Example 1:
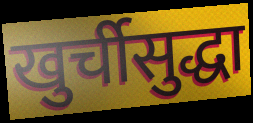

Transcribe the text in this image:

खुर्चीसुद्धा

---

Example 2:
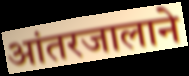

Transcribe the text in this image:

आंतरजालाने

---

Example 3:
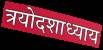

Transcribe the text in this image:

त्रयोदशाध्याय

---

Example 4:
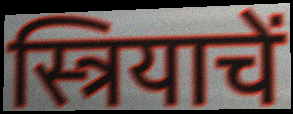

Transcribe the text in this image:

स्त्रियाचें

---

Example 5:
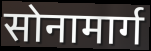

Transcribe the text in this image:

सोनामार्ग